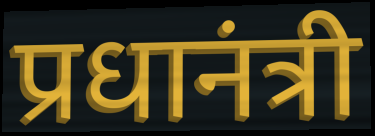
प्रधानंत्री